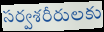
సర్వశరీరులకు